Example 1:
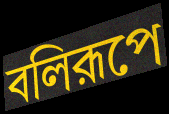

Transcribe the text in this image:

বলিরূপে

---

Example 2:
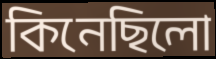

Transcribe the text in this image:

কিনেছিলো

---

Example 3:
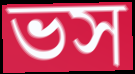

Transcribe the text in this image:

ভস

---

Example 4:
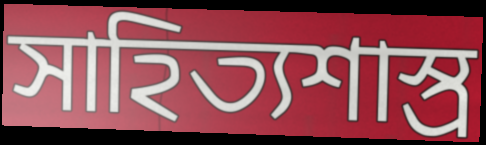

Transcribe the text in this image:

সাহিত্যশাস্ত্র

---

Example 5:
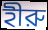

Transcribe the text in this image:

হীরু